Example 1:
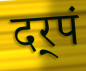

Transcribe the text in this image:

दर्पं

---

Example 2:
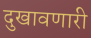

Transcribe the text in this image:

दुखावणारी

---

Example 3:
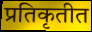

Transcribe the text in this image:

प्रतिकृतीत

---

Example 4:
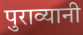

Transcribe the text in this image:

पुराव्यानी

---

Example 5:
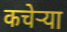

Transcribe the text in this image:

कचेऱ्या